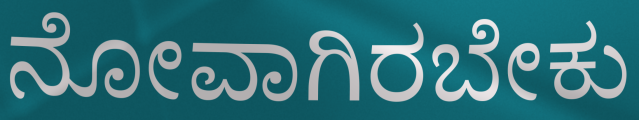
ನೋವಾಗಿರಬೇಕು